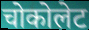
चोकोलेट